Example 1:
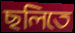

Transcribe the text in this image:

ছলিতে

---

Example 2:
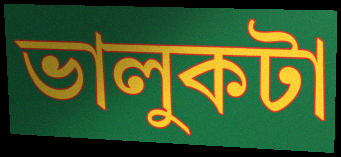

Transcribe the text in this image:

ভালুকটা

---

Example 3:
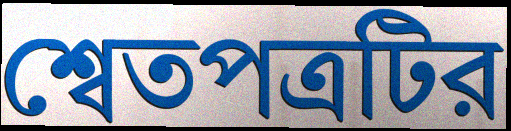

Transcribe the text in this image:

শ্বেতপত্রটির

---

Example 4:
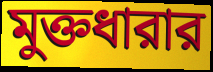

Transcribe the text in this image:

মুক্তধারার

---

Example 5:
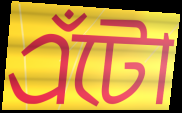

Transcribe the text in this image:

এঁটো